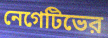
নেগেটিভের